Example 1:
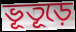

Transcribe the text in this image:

ভূতূড়ে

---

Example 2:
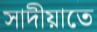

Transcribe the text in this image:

সাদীয়াতে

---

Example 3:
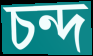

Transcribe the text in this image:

চন্দ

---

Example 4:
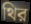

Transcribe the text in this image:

থির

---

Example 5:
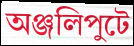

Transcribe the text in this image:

অঞ্জলিপুটে